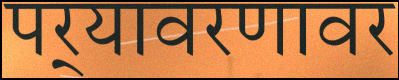
पर्यावरणावर